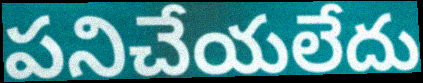
పనిచేయలేదు